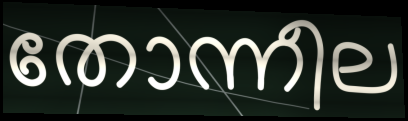
തോന്നീല